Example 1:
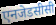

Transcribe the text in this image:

एनजेडसीसी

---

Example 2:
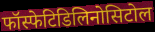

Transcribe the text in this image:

फॉस्फेटिडिलिनोसिटोल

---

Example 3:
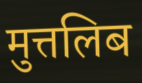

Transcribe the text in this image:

मुत्तलिब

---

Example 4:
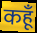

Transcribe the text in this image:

कहूँ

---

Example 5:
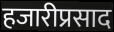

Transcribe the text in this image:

हजारीप्रसाद